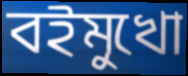
বইমুখো